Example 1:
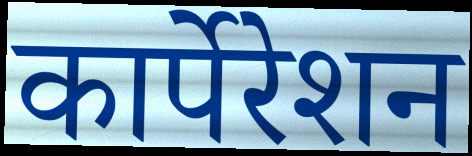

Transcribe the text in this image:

कार्पेरेशन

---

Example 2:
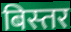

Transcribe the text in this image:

बिस्‍तर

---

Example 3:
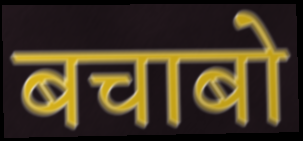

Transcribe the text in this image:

बचाबो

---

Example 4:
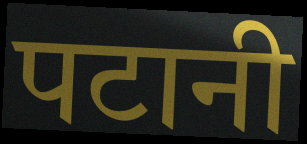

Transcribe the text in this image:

पटानी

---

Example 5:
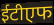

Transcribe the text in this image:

ईटीएफ